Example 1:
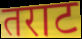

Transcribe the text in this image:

तराट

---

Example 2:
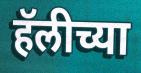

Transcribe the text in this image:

हॅलीच्या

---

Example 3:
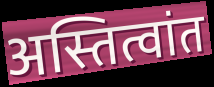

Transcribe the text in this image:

अस्तित्वांत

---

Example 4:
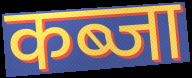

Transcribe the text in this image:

कब्जा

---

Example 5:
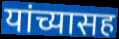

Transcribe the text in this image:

यांच्यासह